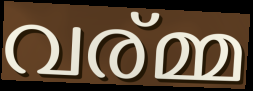
വര്മ്മ